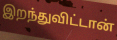
இறந்துவிட்டான்